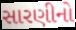
સારણીનો